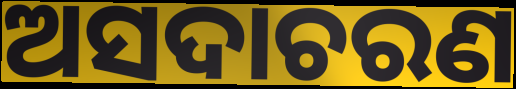
ଅସଦାଚରଣ